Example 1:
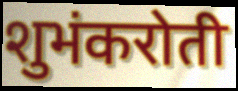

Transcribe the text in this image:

शुभंकरोती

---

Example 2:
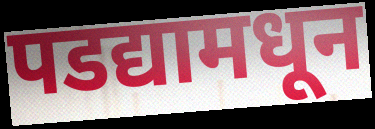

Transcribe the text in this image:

पडद्यामधून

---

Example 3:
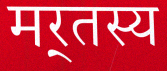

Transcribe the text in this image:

मर्तस्य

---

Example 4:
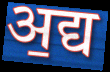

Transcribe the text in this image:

अ॒द्य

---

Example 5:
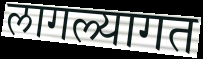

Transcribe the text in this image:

लागल्यागत